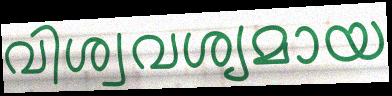
വിശ്വവശ്യമായ